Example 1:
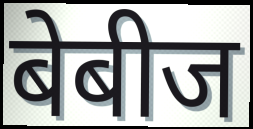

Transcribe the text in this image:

बेबीज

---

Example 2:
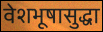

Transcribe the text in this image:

वेशभूषासुद्धा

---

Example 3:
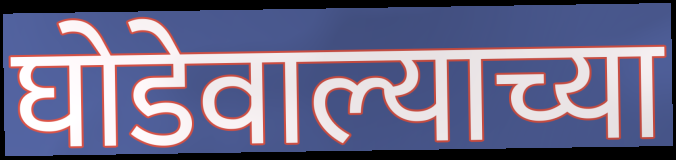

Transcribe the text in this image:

घोडेवाल्याच्या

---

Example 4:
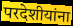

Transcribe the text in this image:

परदेशीयांना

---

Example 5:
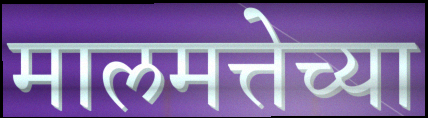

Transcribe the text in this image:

मालमत्तेच्या